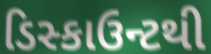
ડિસ્કાઉન્ટથી